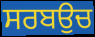
ਸਰਬਉਚ